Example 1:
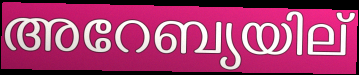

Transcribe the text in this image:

അറേബ്യയില്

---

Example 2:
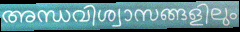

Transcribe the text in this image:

അന്ധവിശ്വാസങ്ങളിലും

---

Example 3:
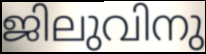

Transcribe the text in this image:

ജിലുവിനു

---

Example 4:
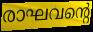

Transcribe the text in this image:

രാഘവന്റെ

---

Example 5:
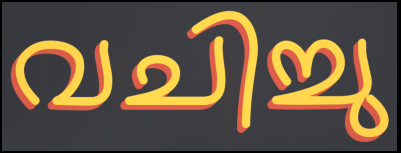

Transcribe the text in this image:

വചിച്ചു